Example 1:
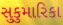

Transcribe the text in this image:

સુકુમારિકા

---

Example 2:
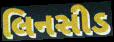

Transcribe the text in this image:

લિનસીડ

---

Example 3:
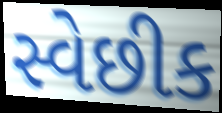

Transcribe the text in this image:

સ્વેછીક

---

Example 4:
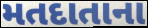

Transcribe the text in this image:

મતદાતાના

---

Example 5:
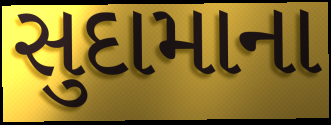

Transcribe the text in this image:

સુદામાના